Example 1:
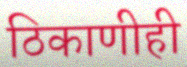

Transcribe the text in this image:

ठिकाणीही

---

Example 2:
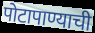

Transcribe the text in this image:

पोटापाण्याची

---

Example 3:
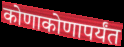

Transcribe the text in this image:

कोणाकोणापर्यंत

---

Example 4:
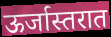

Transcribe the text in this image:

ऊर्जास्तरात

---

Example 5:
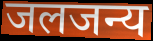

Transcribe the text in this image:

जलजन्य